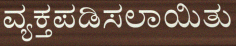
ವ್ಯಕ್ತಪಡಿಸಲಾಯಿತು